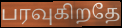
பரவுகிறதே